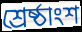
শ্রেষ্ঠাংশ